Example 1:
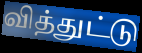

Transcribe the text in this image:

வித்துட்டு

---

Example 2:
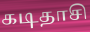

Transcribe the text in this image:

கடிதாசி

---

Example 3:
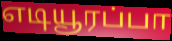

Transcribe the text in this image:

எடியூரப்பா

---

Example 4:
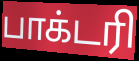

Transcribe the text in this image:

பாக்டரி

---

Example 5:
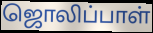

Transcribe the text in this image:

ஜொலிப்பாள்